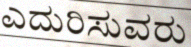
ಎದುರಿಸುವರು